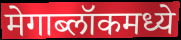
मेगाब्लॉकमध्ये